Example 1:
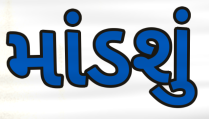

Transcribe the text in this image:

માંડશું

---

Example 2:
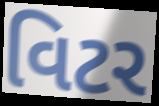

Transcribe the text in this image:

વિટર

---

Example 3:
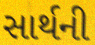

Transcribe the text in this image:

સાર્થની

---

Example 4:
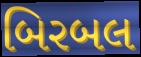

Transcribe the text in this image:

બિરબલ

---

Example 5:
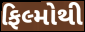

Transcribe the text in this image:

ફિલ્મોથી